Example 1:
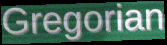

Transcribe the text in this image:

Gregorian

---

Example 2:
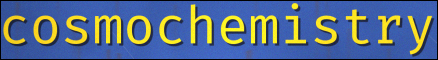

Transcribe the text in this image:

cosmochemistry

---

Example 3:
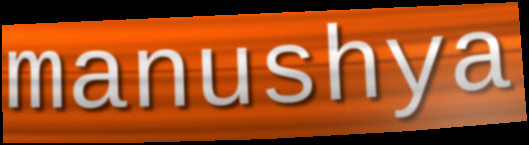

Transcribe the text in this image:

manushya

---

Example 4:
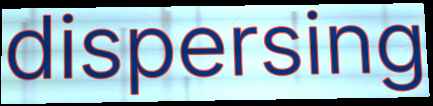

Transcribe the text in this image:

dispersing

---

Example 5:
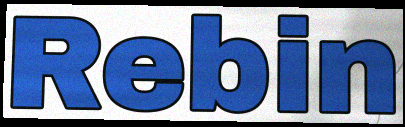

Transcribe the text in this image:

Rebin